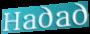
Hadad